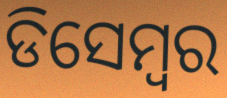
ଡିସେମ୍ୱର